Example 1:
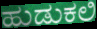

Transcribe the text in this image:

ಹುಡುಕಲಿ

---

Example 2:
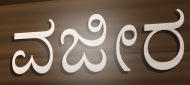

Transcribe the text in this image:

ವಜೀರ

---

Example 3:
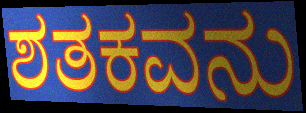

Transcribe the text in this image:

ಶತಕವನು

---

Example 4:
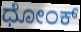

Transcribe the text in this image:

ಧೋಂಕ್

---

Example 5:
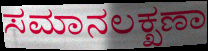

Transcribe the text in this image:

ಸಮಾನಲಕ್ಖಣಾ